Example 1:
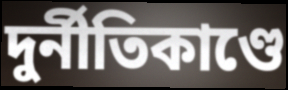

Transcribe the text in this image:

দুর্নীতিকাণ্ডে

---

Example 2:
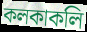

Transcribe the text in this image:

কলকাকলি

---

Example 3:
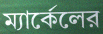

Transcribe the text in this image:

ম্যার্কেলের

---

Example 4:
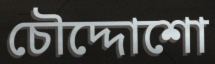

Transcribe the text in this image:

চৌদ্দোশো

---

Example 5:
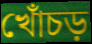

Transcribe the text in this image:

খোঁচড়